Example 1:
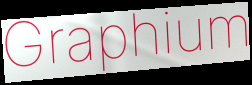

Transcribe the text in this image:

Graphium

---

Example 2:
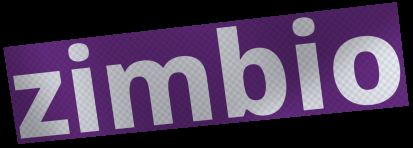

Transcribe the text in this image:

zimbio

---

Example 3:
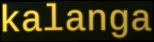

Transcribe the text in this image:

kalanga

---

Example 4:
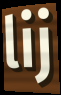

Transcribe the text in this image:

lij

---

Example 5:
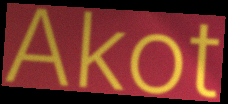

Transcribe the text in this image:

Akot